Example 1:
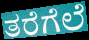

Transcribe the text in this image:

ತರೆಗೆಲೆ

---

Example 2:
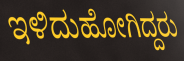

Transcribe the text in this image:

ಇಳಿದುಹೋಗಿದ್ದರು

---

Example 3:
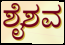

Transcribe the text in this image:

ಶೈಶವ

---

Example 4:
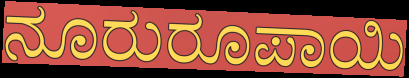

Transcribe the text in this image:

ನೂರುರೂಪಾಯಿ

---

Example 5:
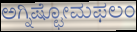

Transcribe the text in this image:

ಅಗ್ನಿಷ್ಟೋಮಫಲಂ